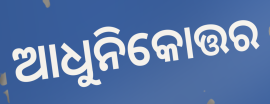
ଆଧୁନିକୋତ୍ତର